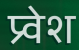
प्र्वेश